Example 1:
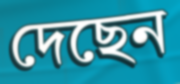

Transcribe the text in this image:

দেছেন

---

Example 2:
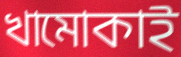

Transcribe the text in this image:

খামোকাই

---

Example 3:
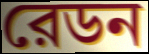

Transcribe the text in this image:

রেডন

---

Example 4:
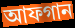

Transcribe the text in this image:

আফগান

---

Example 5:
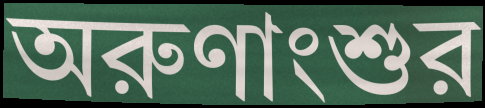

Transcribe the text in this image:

অরুণাংশুর